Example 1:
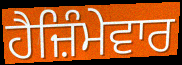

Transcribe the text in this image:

ਹੈਜ਼ਿੰਮੇਵਾਰ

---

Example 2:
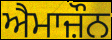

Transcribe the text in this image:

ਐਮਾਜ਼ੌਨ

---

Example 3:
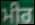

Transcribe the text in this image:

ਮੀਰ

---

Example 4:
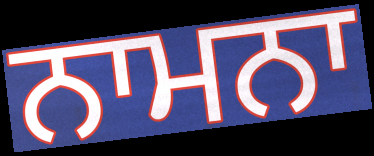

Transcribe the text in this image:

ਨਾਮਨਾ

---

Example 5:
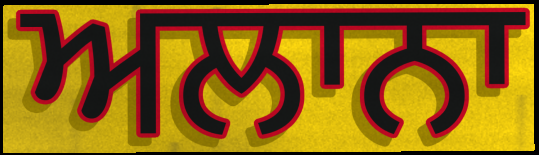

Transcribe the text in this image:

ਅਲਾਨਾ